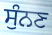
ਸੁੰਨਣ